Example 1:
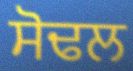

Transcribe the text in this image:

ਸੋਢਲ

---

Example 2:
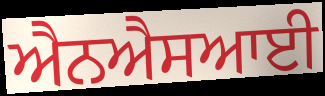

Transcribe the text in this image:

ਐਨਐਸਆਈ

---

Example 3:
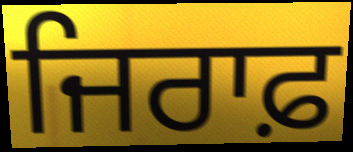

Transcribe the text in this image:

ਜਿਰਾਫ਼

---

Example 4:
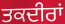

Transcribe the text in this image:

ਤਕਦੀਰਾਂ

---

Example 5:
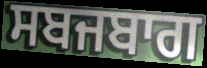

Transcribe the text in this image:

ਸਬਜਬਾਗ